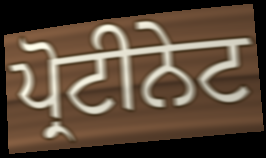
ਪ੍ਰੋਟੀਨੇਟ